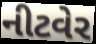
નીટવેર